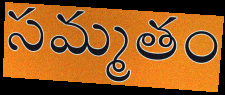
సమ్మతం